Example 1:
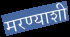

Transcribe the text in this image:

मरण्याशी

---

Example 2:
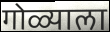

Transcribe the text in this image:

गोळ्याला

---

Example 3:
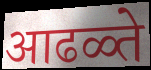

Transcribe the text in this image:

आढळ्ते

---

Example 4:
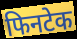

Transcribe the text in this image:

फिनटेक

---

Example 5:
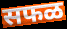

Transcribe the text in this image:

सफळ